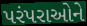
પરંપરાઓને